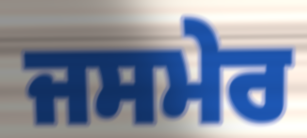
ਜਸਮੇਰ